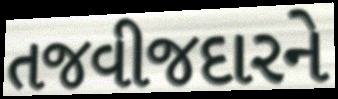
તજવીજદારને